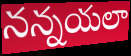
నన్నయలా